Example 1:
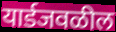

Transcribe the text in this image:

यार्डजवळील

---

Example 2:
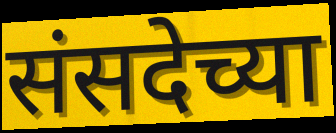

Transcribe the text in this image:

संसदेच्या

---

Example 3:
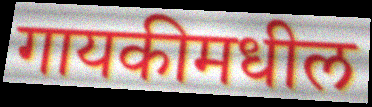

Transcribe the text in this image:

गायकीमधील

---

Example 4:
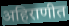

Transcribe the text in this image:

अहिराणीत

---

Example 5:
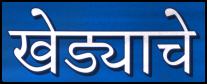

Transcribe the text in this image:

खेड्याचे